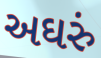
અઘરું